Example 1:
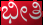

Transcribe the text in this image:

ಭೀತಿ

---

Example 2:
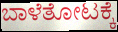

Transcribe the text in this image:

ಬಾಳೆತೋಟಕ್ಕೆ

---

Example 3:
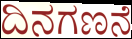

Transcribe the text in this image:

ದಿನಗಣನೆ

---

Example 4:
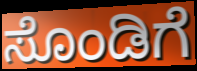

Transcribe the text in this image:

ಸೊಂಡಿಗೆ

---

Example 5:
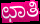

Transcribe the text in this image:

ಛಾತಿ